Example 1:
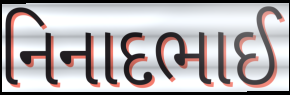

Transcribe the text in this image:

નિનાદભાઈ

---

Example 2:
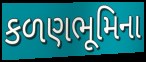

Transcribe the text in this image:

કળણભૂમિના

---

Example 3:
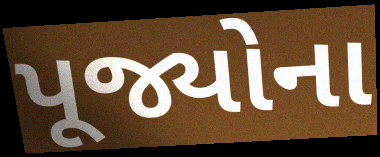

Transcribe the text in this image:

પૂજ્યોના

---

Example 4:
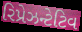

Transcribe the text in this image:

રિપ્રેઝન્ટેટિવ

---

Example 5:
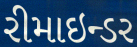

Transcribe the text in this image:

રીમાઇન્ડર